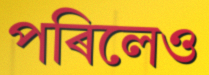
পৰিলেও